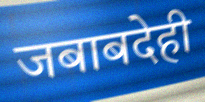
जबाबदेही